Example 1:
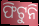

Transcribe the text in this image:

ଫିଟୁନି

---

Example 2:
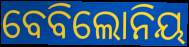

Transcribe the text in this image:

ବେବିଲୋନିୟ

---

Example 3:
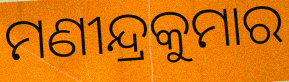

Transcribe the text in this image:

ମଣୀନ୍ଦ୍ରକୁମାର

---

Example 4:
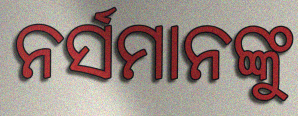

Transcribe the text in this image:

ନର୍ସମାନଙ୍କୁ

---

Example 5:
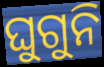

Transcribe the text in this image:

ଘୁଗୁନି